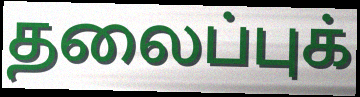
தலைப்புக்